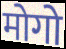
मोगो